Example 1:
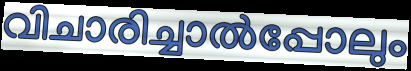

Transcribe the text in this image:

വിചാരിച്ചാൽപ്പോലും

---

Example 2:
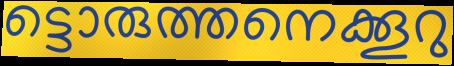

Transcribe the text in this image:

ട്ടൊരുത്തനെക്കൂറു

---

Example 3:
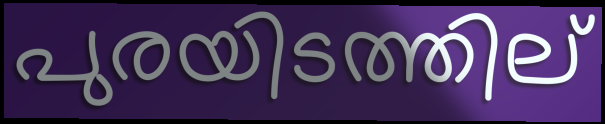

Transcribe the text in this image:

പുരയിടത്തില്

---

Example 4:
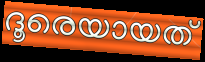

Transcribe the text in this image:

ദൂരെയായത്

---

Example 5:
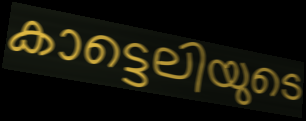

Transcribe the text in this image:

കാട്ടെലിയുടെ